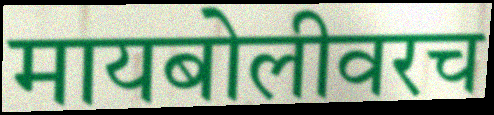
मायबोलीवरच